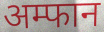
अम्फान